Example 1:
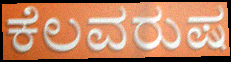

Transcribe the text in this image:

ಕೆಲವರುಷ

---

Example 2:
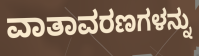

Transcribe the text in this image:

ವಾತಾವರಣಗಳನ್ನು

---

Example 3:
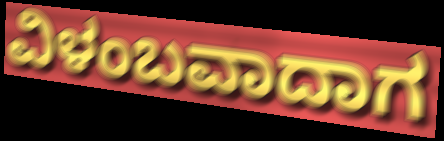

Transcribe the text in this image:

ವಿಳಂಬವಾದಾಗ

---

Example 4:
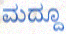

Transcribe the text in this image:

ಮದ್ದೂ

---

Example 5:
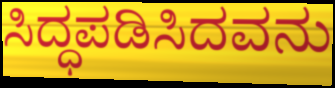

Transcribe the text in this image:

ಸಿದ್ಧಪಡಿಸಿದವನು